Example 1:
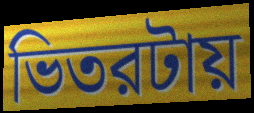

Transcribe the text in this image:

ভিতরটায়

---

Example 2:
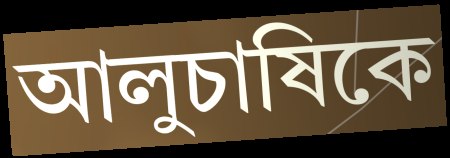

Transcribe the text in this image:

আলুচাষিকে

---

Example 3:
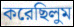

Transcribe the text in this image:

করেছিলুম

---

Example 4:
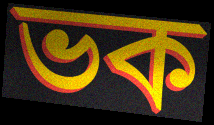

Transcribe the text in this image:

ভক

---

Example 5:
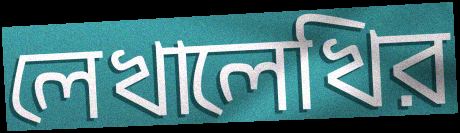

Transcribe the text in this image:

লেখালেখির